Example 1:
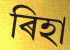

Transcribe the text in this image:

ৰিহা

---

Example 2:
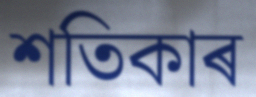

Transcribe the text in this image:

শতিকাৰ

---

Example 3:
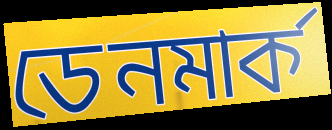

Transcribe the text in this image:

ডেনমাৰ্ক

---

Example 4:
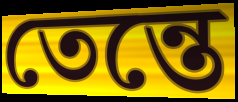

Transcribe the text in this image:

তেন্তে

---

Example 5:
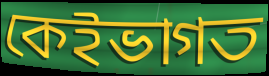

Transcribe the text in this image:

কেইভাগত